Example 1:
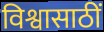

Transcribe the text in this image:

विश्वासाठीं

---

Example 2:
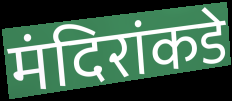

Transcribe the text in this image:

मंदिरांकडे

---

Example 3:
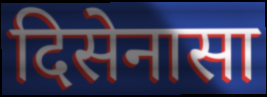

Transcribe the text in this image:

दिसेनासा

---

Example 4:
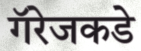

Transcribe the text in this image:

गॅरेजकडे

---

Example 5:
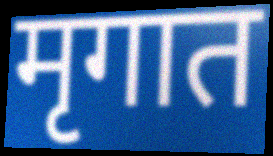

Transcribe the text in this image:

मृगात